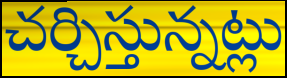
చర్చిస్తున్నట్లు